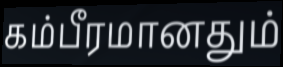
கம்பீரமானதும்